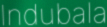
Indubala